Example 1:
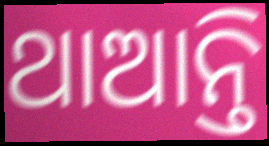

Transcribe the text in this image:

ଥାଆନ୍ତି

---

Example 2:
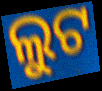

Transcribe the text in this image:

ଲୁଟ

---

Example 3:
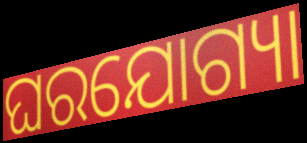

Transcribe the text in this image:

ଘରଯୋଗ୍ୟା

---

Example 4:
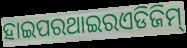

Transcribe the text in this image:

ହାଇପରଥାଇରଏଡିଜିମ୍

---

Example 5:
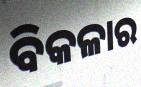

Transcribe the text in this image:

ବିକଳାର